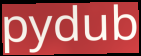
pydub